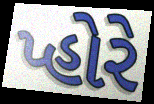
પ્હોરે